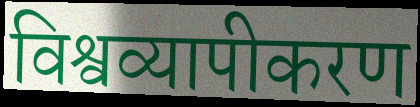
विश्वव्यापीकरण